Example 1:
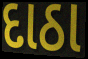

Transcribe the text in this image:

દાઠા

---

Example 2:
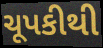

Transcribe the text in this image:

ચૂપકીથી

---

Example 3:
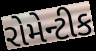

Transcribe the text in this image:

રોમેન્ટીક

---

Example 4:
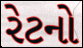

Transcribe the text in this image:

રેટનો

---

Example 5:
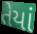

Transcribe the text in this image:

તેયાં